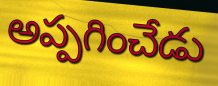
అప్పగించేడు